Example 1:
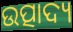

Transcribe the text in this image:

ଉତ୍ପାଦ୍ୟ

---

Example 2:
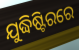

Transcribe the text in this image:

ଯୁଦ୍ଧିଷ୍ଟିରରେ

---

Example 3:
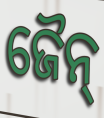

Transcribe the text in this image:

ଜୈନ୍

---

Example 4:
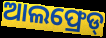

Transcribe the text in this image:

ଆଲଫ୍ରେଡ୍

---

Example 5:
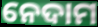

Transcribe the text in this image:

ନେଦାମ